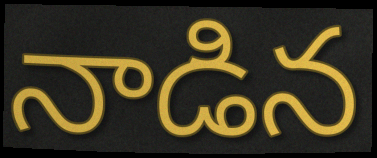
నాడిన